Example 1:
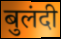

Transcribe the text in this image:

बुलंदी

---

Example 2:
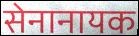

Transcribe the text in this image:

सेनानायक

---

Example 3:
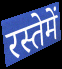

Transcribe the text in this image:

रस्तेमें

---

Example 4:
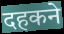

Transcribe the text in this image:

दहकने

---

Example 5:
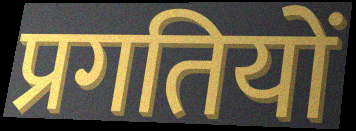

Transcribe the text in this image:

प्रगतियों